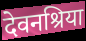
देवनश्रिया